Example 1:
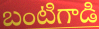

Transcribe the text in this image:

బంటిగాడి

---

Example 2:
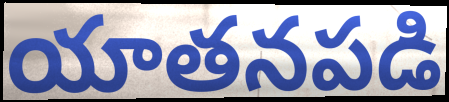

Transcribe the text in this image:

యాతనపడి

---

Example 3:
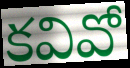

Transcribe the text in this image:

కవివో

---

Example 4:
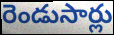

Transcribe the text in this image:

రెండుసార్లు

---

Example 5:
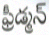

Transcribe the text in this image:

ఫ్రీడ్మన్